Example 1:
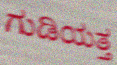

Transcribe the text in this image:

ಗುಡಿಯತ್ತ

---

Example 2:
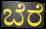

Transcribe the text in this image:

ಬೆರೆ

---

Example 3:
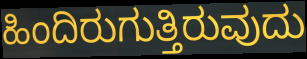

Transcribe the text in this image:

ಹಿಂದಿರುಗುತ್ತಿರುವುದು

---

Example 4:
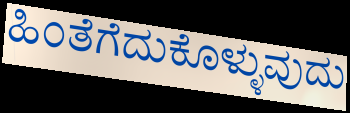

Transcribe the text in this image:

ಹಿಂತೆಗೆದುಕೊಳ್ಳುವುದು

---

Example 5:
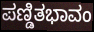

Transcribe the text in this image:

ಪಣ್ಡಿತಭಾವಂ